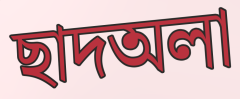
ছাদঅলা